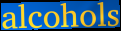
alcohols